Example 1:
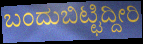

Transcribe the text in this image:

ಬಂದುಬಿಟ್ಟಿದ್ದೀರಿ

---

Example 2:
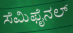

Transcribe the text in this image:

ಸೆಮಿಫೈನಲ್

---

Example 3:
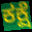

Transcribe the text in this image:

ಕಕ್ಷೆ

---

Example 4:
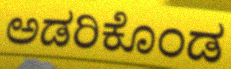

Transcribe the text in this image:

ಅಡರಿಕೊಂಡ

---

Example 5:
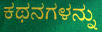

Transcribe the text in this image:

ಕಥನಗಳನ್ನು